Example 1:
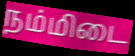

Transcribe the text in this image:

நம்மிடை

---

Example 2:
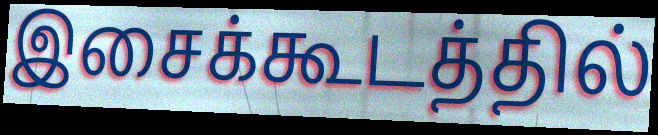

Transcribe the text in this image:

இசைக்கூடத்தில்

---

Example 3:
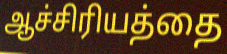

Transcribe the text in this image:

ஆச்சிரியத்தை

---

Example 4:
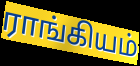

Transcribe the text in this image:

ராங்கியம்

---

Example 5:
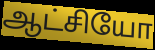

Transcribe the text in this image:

ஆட்சியோ